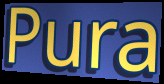
Pura